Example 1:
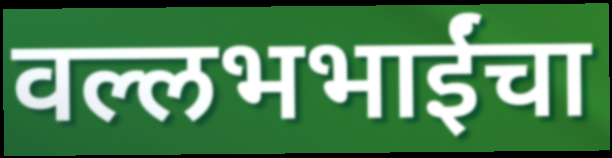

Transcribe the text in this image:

वल्लभभाईंचा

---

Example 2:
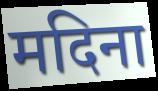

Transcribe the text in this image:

मदिना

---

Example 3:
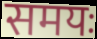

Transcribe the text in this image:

समयः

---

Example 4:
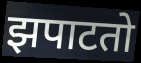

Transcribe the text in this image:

झपाटतो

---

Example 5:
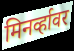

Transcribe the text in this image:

मिनर्व्हावर